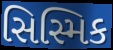
સિસ્મિક